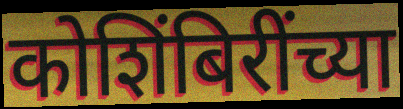
कोशिंबिरींच्या